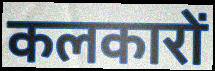
कलकारों